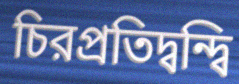
চিরপ্রতিদ্বন্দ্বি